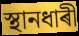
স্থানধাৰী